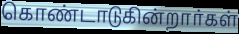
கொண்டாடுகின்றார்கள்